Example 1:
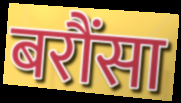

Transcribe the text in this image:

बरौंसा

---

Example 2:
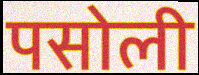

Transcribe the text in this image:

पसोली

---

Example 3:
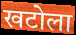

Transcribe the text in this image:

खटोला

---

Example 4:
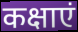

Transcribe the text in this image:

कक्षाएं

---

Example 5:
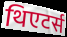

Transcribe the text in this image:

थिएटर्स